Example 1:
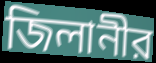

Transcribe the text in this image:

জিলানীর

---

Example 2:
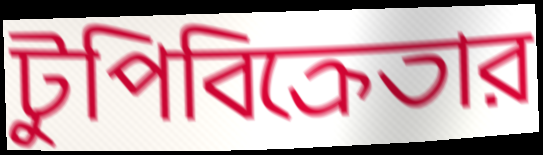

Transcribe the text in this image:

টুপিবিক্রেতার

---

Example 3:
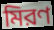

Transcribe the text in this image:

মিরণ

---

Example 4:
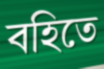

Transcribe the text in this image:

বহিতে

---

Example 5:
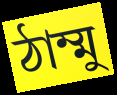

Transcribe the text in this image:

ঠাম্মু